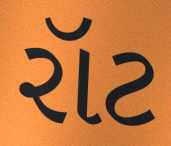
રૉટ